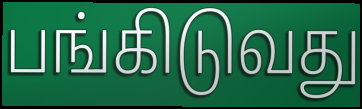
பங்கிடுவது